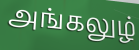
அங்கலுழ்